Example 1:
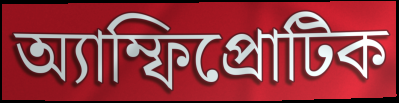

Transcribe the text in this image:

অ্যাম্ফিপ্রোটিক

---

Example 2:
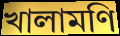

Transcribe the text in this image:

খালামণি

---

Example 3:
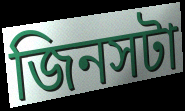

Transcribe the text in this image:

জিনসটা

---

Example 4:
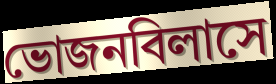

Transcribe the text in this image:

ভোজনবিলাসে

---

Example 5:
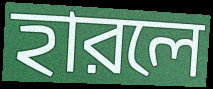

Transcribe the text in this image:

হারলে